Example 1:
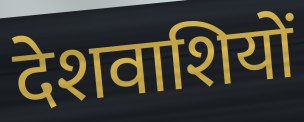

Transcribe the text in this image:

देशवाशियों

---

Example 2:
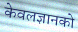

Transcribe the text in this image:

केवलज्ञानको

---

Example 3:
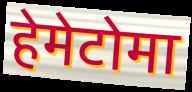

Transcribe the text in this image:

हेमेटोमा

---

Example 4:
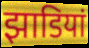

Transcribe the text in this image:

झाडियां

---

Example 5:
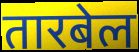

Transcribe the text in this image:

तारबेल